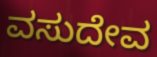
ವಸುದೇವ